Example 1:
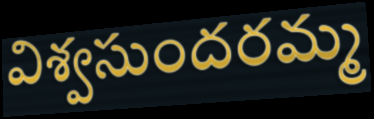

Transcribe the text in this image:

విశ్వసుందరమ్మ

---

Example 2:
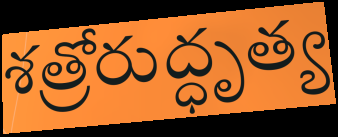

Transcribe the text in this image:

శత్రోరుద్ధృత్య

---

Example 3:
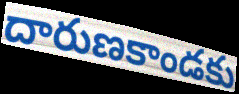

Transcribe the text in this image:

దారుణకాండకు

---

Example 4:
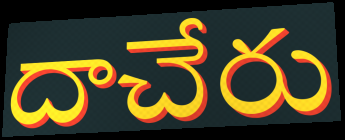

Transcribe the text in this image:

దాచేరు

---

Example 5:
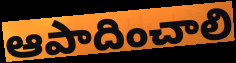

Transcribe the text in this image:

ఆపాదించాలి